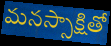
మనస్సాక్షితో